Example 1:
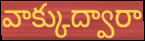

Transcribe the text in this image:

వాక్కుద్వారా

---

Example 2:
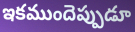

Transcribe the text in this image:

ఇకముందెప్పుడూ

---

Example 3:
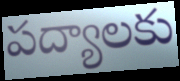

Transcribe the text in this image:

పద్యాలకు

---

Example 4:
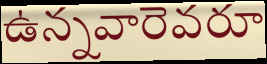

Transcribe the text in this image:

ఉన్నవారెవరూ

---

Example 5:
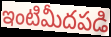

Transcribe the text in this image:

ఇంటిమీదపడి